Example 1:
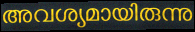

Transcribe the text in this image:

അവശ്യമായിരുന്നു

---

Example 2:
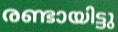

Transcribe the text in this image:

രണ്ടായിട്ടു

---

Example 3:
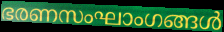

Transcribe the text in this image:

ഭരണസംഘാംഗങ്ങൾ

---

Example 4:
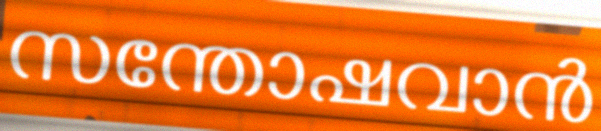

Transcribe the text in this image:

സന്തോഷവാൻ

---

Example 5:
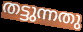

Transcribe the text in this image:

തട്ടുന്നതു